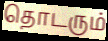
தொடரும்